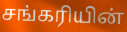
சங்கரியின்